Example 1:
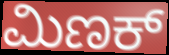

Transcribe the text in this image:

ಮಿಣಕ್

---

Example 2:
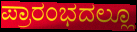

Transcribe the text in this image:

ಪ್ರಾರಂಭದಲ್ಲೂ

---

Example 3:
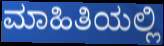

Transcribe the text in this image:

ಮಾಹಿತಿಯಲ್ಲಿ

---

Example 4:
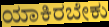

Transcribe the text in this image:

ಯಾಕಿರಬೇಕು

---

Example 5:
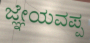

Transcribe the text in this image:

ಜ್ಞೇಯವಪ್ಪ